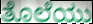
ತೊಲೆಯು